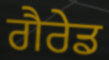
ਗੈਰੇਡ